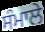
ਸੰਮਾਲੇ